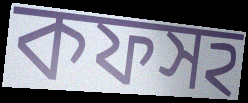
কফসহ